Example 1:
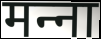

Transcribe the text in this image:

मन्ना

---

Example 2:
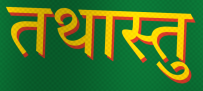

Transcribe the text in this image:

तथास्तु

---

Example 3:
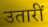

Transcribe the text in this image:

उतारीं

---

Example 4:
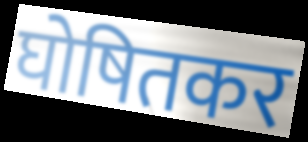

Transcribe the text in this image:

घोषितकर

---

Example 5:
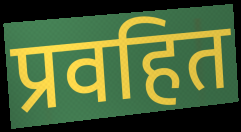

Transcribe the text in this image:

प्रवहित